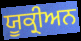
ਯੂਕ੍ਰੀਅਨ